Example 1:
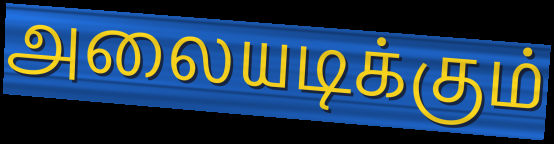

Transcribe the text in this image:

அலையடிக்கும்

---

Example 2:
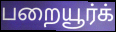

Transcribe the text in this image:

பறையூர்க்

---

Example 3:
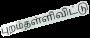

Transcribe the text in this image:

புறம்தள்ளிவிட்டு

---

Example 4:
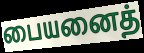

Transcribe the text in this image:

பையனைத்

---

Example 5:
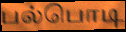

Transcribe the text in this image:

பல்பொடி